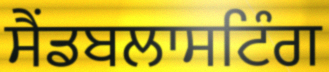
ਸੈਂਡਬਲਾਸਟਿੰਗ